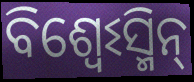
ବିଶ୍ଵେଽସ୍ମିନ୍